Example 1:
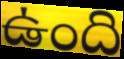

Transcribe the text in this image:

ఉంది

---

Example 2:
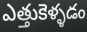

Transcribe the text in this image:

ఎత్తుకెళ్ళడం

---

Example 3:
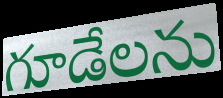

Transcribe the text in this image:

గూడేలను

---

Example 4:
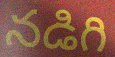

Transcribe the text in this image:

నడిగి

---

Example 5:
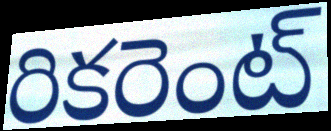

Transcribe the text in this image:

రికరెంట్